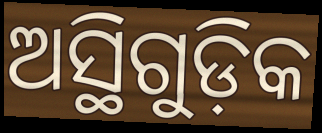
ଅସ୍ଥିଗୁଡ଼ିକ